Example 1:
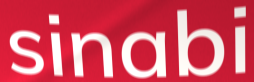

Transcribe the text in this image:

sinabi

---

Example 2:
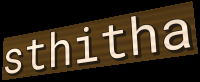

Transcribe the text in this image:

sthitha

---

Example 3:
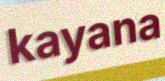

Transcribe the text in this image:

kayana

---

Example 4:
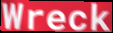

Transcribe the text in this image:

Wreck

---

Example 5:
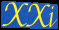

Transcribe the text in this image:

XXi